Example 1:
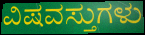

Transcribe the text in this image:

ವಿಷವಸ್ತುಗಳು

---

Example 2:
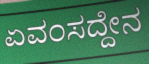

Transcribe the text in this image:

ಏವಂಸದ್ದೇನ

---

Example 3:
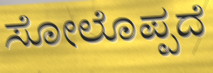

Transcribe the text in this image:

ಸೋಲೊಪ್ಪದೆ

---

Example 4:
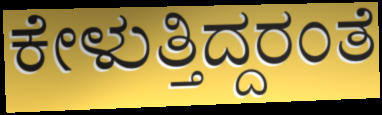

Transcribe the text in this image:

ಕೇಳುತ್ತಿದ್ದರಂತೆ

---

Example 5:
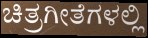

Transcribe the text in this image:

ಚಿತ್ರಗೀತೆಗಳಲ್ಲಿ